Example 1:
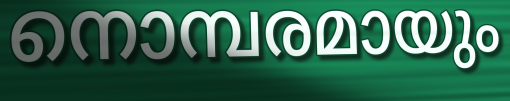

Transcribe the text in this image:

നൊമ്പരമായും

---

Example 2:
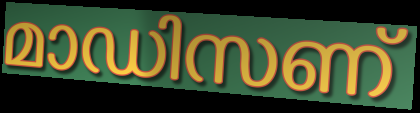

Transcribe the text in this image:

മാഡിസണ്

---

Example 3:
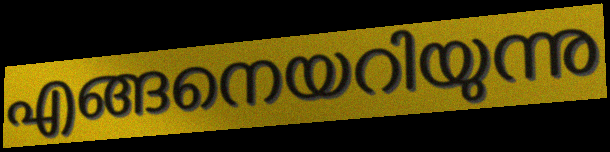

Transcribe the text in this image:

എങ്ങനെയറിയുന്നു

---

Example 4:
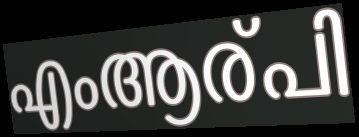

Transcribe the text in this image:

എംആര്പി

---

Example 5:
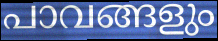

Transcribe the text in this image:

പാവങ്ങളും